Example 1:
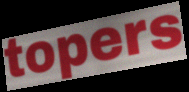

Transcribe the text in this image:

topers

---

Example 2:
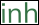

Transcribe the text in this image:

inh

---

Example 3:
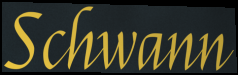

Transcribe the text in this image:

Schwann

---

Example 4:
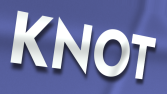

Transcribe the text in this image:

KNOT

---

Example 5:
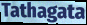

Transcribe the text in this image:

Tathagata